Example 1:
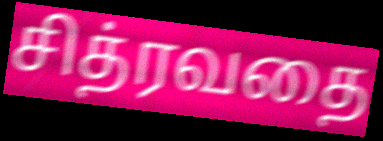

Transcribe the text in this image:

சித்ரவதை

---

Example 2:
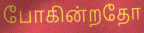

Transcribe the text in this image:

போகின்றதோ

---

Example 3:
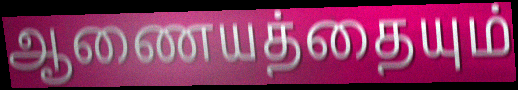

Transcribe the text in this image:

ஆணையத்தையும்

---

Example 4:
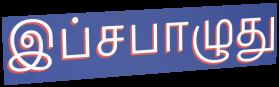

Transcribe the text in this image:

இப்சபாழுது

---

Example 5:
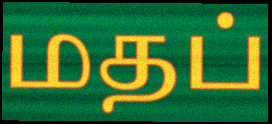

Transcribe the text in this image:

மதப்